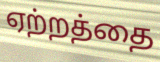
ஏற்றத்தை